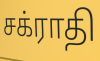
சக்ராதி